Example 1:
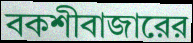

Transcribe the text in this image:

বকশীবাজারের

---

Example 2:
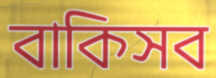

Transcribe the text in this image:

বাকিসব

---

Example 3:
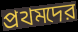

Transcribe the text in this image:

প্রথমদের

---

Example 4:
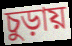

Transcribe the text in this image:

চুড়ায়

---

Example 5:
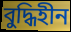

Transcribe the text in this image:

বুদ্ধিহীন